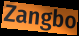
Zangbo